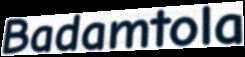
Badamtola